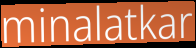
minalatkar